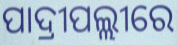
ପାଦ୍ରୀପଲ୍ଲୀରେ